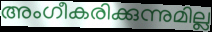
അംഗീകരിക്കുന്നുമില്ല